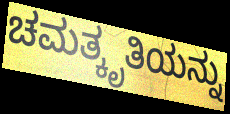
ಚಮತ್ಕೃತಿಯನ್ನು